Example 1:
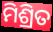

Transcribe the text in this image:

ମିଶ୍ରିତ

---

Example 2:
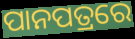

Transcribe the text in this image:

ପାନପତ୍ରରେ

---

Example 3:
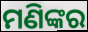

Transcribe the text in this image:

ମଣିଙ୍କର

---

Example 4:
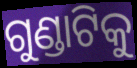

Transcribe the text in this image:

ଗୁଣ୍ଡାଟିକୁ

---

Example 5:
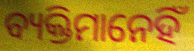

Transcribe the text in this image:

ବ୍ୟକ୍ତିମାନେହିଁ